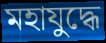
মহাযুদ্ধে